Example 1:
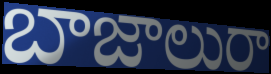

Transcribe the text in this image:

బాజాలురా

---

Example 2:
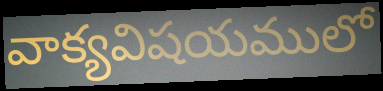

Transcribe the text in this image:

వాక్యవిషయములో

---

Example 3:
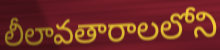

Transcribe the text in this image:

లీలావతారాలలోని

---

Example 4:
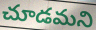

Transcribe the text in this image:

చూడమని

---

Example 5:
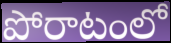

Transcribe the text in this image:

పోరాటంలో